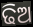
ଢିଅ